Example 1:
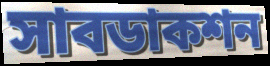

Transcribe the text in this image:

সাবডাকশন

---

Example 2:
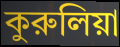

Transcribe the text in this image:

কুরুলিয়া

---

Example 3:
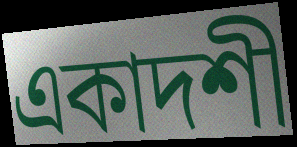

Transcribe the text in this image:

একাদশী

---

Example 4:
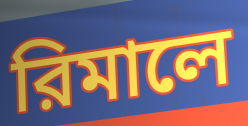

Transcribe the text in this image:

রিমালে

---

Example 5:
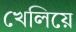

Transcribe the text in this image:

খেলিয়ে